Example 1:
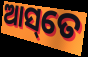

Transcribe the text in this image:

ଆସ୍‌ତେ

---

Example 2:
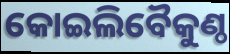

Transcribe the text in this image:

କୋଇଲିବୈକୁଣ୍ଠ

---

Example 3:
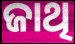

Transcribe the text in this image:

ଜାଥି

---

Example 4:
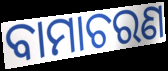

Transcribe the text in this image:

ବାମାଚରଣ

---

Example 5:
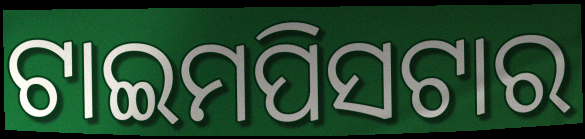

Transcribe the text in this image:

ଟାଇମପିସଟାର